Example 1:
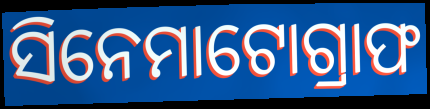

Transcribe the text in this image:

ସିନେମାଟୋଗ୍ରାଫ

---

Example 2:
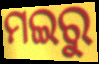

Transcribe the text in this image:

ମଇରୁ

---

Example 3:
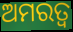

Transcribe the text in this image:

ଅମରତ୍ଵ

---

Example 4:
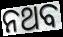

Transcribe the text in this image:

ନଥବ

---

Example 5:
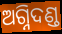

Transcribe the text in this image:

ଅଗ୍ନିଦଣ୍ଡ